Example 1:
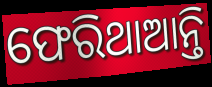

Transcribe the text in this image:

ଫେରିଥାଆନ୍ତି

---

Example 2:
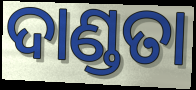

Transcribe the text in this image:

ଦାଣ୍ଡତା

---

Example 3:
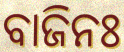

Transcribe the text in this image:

ବାଜିନଃ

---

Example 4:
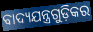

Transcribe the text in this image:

ବାଦ୍ୟଯନ୍ତ୍ରଗୁଡ଼ିକର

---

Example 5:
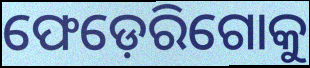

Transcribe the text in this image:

ଫେଡ଼େରିଗୋକୁ